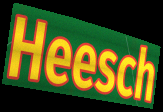
Heesch